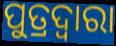
ପୁତ୍ରଦ୍ୱାରା